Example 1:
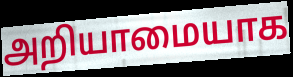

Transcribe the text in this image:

அறியாமையாக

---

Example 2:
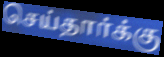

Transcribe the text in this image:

செய்தார்க்கு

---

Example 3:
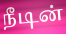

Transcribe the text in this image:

நீடின்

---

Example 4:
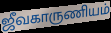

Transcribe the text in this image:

ஜீவகாருணியம்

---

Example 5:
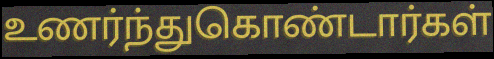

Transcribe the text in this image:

உணர்ந்துகொண்டார்கள்